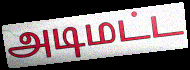
அடிமட்ட